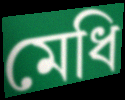
মেধি